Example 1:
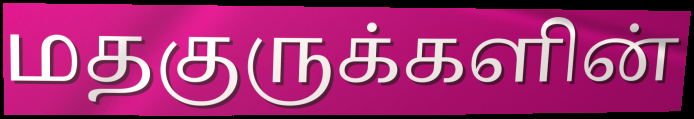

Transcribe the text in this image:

மதகுருக்களின்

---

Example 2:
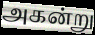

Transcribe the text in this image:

அகன்று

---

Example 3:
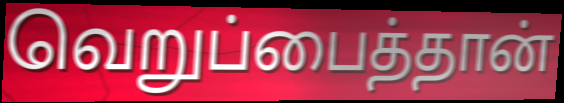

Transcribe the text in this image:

வெறுப்பைத்தான்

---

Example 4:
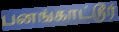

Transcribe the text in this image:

பனங்காட்டூர்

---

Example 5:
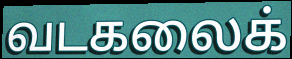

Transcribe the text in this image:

வடகலைக்